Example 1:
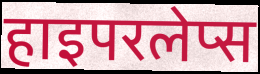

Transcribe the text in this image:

हाइपरलेप्स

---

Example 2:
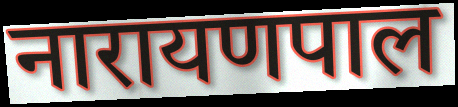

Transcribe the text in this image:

नारायणपाल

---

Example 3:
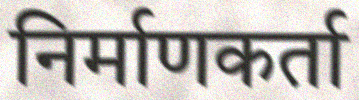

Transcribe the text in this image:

निर्माणकर्ता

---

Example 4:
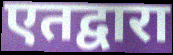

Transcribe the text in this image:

एतद्वारा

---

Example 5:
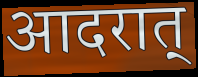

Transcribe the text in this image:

आदरात्